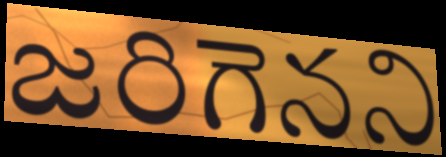
జరిగెనని